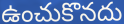
ఉంచుకొనదు